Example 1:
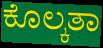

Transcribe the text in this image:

ಕೊಲ್ಕತಾ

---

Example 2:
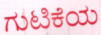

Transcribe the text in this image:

ಗುಟಿಕೆಯ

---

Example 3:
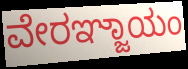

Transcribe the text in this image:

ವೇರಞ್ಜಾಯಂ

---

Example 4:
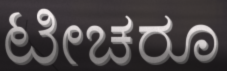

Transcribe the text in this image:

ಟೀಚರೂ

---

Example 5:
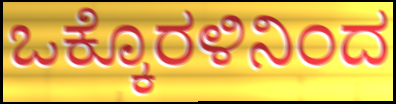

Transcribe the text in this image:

ಒಕ್ಕೊರಳಿನಿಂದ